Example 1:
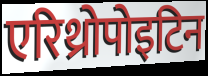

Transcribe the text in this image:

एरिथ्रोपोइटिन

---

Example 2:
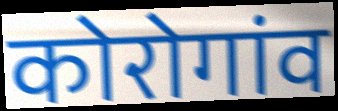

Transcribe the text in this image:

कोरोगांव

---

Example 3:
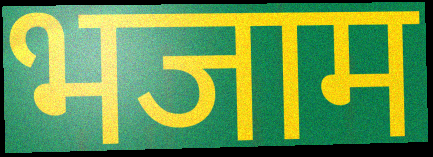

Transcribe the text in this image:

भजाम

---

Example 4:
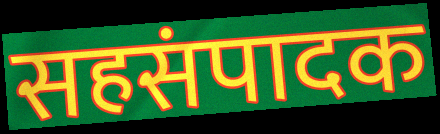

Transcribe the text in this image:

सहसंपादक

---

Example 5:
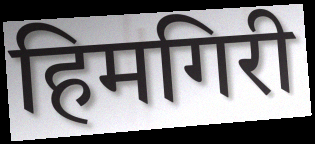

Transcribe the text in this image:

हिमगिरी